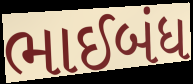
ભાઈબંધ